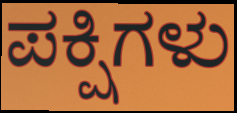
ಪಕ್ಷಿಗಳು